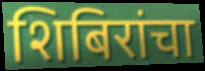
शिबिरांचा